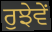
ਰੁਝੇਵੇਂ